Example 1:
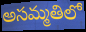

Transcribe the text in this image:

అసమ్మతిలో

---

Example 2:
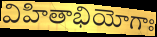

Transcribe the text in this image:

విహితాభియోగాః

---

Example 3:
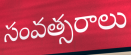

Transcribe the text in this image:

సంవత్సరాలు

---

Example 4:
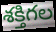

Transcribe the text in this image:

శక్తిగల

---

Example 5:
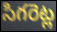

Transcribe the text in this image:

సిగరెట్ల